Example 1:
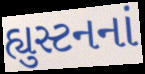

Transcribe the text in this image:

હ્યુસ્ટનનાં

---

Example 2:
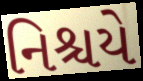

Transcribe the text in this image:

નિશ્ચયે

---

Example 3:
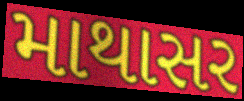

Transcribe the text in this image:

માથાસર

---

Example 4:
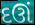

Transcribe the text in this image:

દઊં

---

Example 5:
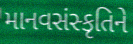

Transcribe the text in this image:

માનવસંસ્કૃતિને